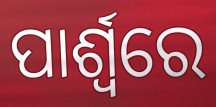
ପାର୍ଶ୍ଵରେ